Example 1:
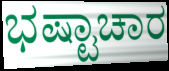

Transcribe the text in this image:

ಭಷ್ಟಾಚಾರ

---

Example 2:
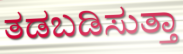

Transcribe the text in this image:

ತಡಬಡಿಸುತ್ತಾ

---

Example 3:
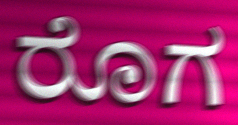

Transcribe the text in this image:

ರೊಗ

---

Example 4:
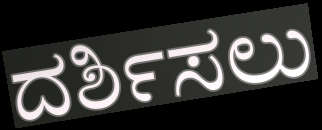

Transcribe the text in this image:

ದರ್ಶಿಸಲು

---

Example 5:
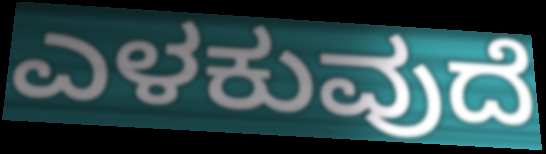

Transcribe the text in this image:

ಎಳಕುವುದೆ